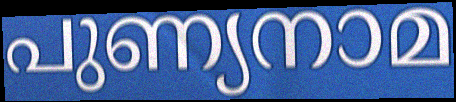
പുണ്യനാമ